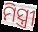
ମିସ୍ତ୍ରୀ